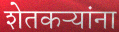
शेतकऱ्यांना